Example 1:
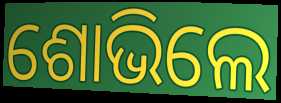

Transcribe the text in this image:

ଶୋଭିଲେ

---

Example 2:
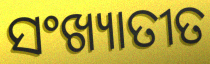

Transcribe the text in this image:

ସଂଖ୍ୟାତୀତ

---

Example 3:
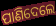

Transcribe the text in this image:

ପାଣିଦେଲେ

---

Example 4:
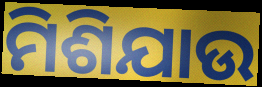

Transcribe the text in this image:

ମିଶିଯାଉ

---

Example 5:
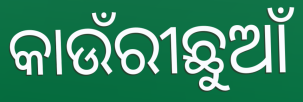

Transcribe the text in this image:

କାଉଁରୀଛୁଆଁ